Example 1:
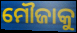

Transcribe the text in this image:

ମୌଜାକୁ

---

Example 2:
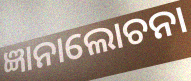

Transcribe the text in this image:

ଜ୍ଞାନାଲୋଚନା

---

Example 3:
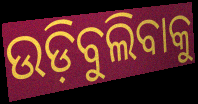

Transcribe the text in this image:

ଉଡ଼ିବୁଲିବାକୁ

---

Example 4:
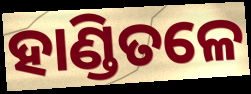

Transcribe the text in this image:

ହାଣ୍ଡିତଳେ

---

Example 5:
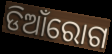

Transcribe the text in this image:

ଡିଆଁରୋଗ